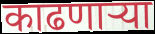
काढणार्‍या